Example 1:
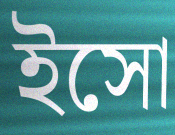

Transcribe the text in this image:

ইসো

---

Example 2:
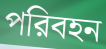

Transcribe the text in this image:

পরিবহন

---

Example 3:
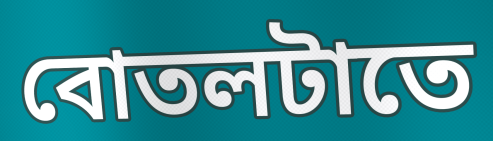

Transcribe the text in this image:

বোতলটাতে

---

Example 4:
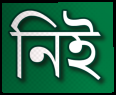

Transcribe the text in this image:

নিই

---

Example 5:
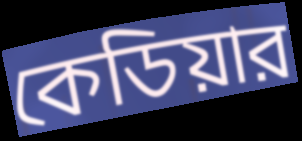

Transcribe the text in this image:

কেডিয়ার